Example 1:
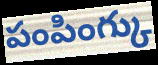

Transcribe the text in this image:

పంపింగ్కు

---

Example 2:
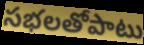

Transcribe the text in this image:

సభలతోపాటు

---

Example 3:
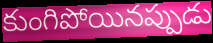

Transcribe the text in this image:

కుంగిపోయినప్పుడు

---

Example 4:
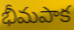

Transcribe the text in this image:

భీమపాక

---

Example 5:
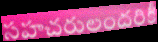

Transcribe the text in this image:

సహచరులందరికీ